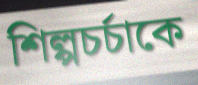
শিল্পচর্চাকে